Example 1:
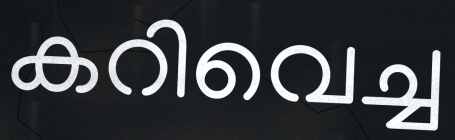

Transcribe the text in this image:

കറിവെച്ച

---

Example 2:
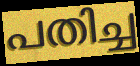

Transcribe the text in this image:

പതിച്ച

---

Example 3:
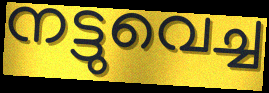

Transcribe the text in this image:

നട്ടുവെച്ച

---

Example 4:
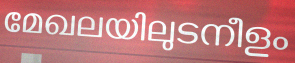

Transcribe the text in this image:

മേഖലയിലുടനീളം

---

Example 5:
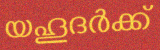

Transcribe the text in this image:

യഹൂദർക്ക്